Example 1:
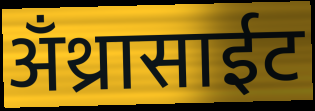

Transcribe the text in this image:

अँथ्रासाईट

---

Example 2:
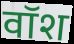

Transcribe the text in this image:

वॉश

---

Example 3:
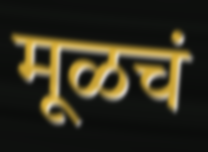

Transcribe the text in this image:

मूळचं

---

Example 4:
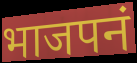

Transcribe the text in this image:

भाजपनं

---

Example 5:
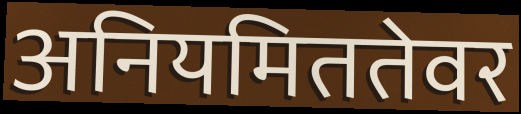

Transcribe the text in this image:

अनियमिततेवर